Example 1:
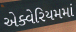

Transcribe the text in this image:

એક્વેરિયમમાં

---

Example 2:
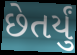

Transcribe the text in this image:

છેતર્યું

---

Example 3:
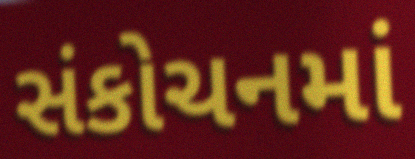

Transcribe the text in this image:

સંકોચનમાં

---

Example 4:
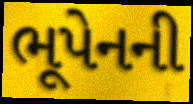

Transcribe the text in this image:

ભૂપેનની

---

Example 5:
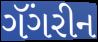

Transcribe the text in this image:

ગૅંગરીન